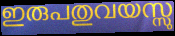
ഇരുപതുവയസ്സു